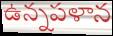
ఉన్నపళాన